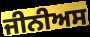
ਜੀਨੀਅਸ